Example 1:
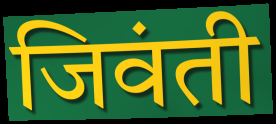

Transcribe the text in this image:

जिवंती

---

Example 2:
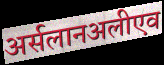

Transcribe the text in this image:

अर्सलानअलीएव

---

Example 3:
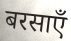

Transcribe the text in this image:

बरसाएँ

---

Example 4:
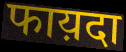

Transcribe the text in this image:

फाय़दा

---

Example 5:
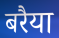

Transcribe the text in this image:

बरैया